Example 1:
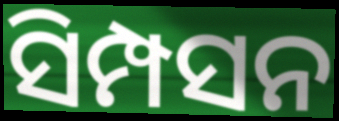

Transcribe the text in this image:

ସିମ୍ପସନ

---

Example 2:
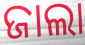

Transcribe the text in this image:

ଜାଲା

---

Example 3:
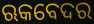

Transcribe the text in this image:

ଋକବେଦର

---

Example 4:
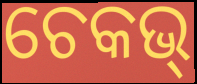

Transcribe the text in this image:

ଚେକଭ୍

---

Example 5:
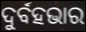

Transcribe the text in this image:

ଦୁର୍ବହଭାର